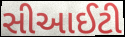
સીઆઈટી